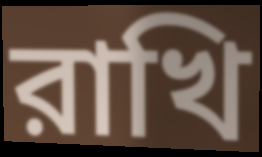
রাখি